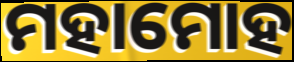
ମହାମୋହ